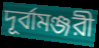
দূর্বামঞ্জরী